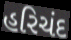
હરિચંદ